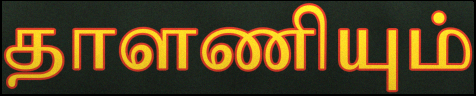
தாளணியும்